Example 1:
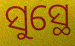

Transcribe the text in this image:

ସୁସ୍ଥେ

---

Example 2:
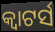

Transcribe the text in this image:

କ୍ଵାଟର୍ସ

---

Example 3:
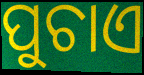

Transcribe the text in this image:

ପୁଚାଏ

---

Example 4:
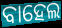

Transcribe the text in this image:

ବାହେଲ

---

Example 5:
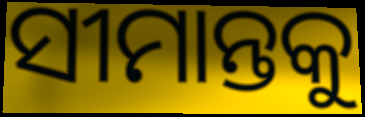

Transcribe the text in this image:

ସୀମାନ୍ତକୁ